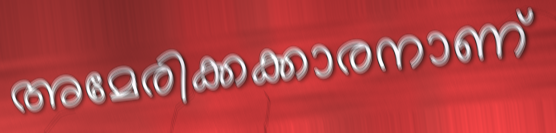
അമേരിക്കക്കാരനാണ്